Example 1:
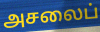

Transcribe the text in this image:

அசலைப்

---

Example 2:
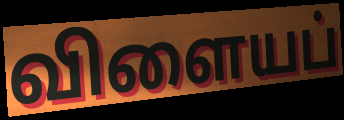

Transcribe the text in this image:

விளையப்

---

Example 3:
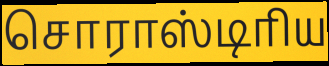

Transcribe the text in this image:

சொராஸ்டிரிய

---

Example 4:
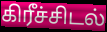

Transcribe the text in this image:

கிரீச்சிடல்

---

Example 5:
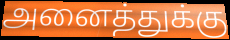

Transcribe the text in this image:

அனைத்துக்கு